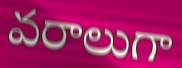
వరాలుగా